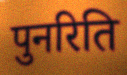
पुनरिति